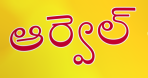
ఆర్వెల్